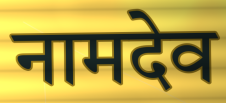
नामदेव